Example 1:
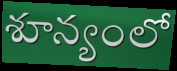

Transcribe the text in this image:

శూన్యంలో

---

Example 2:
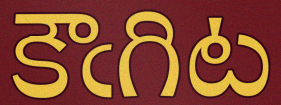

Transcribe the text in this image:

కౌఁగిట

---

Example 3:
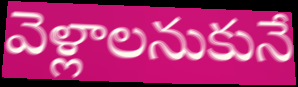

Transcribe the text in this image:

వెళ్లాలనుకునే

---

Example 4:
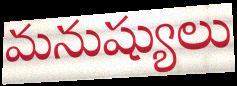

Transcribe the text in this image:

మనుష్యులు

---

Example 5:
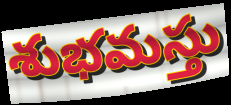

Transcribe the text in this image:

శుభమస్తు